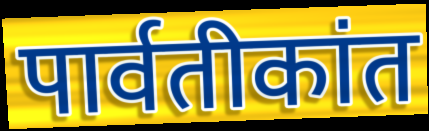
पार्वतीकांत